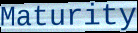
Maturity